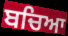
ਬਚਿਆ